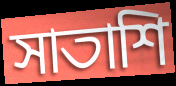
সাতাশি